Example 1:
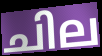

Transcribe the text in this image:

ചില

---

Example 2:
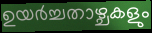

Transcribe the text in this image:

ഉയർച്ചതാഴ്ചകളും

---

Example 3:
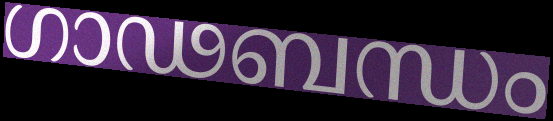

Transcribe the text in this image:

ഗാഢബന്ധം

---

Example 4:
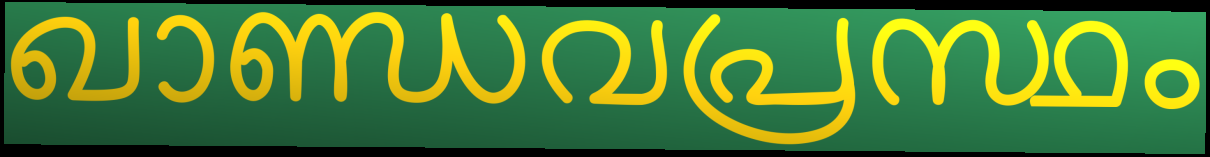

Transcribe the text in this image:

ഖാണ്ഡവപ്രസ്ഥം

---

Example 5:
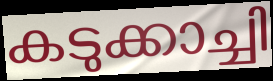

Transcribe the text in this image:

കടുക്കാച്ചി